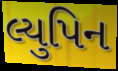
લ્યુપિન